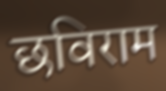
छविराम